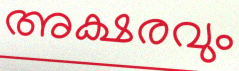
അക്ഷരവും